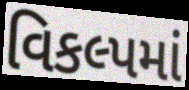
વિકલ્પમાં